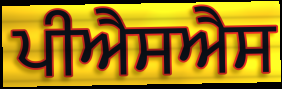
ਪੀਐਸਐਸ